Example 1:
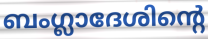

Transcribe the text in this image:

ബംഗ്ലാദേശിന്റെ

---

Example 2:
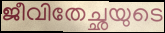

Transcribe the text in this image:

ജീവിതേച്ഛയുടെ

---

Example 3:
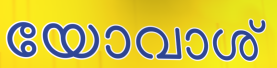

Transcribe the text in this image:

യോവാശ്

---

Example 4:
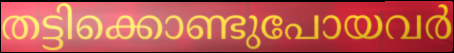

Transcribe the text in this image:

തട്ടിക്കൊണ്ടുപോയവർ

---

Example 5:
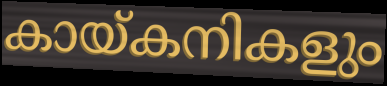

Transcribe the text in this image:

കായ്കനികളും